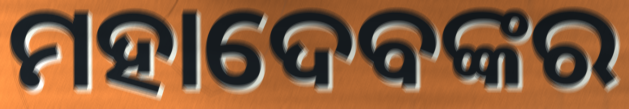
ମହାଦେବଙ୍କର